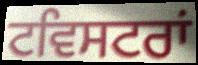
ਟਵਿਸਟਰਾਂ